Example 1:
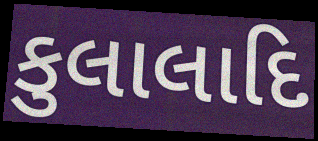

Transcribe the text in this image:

કુલાલાદિ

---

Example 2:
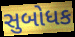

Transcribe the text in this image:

સુબોધક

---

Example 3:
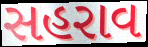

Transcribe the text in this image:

સહરાવ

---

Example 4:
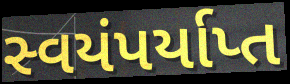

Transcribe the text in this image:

સ્વયંપર્યાપ્ત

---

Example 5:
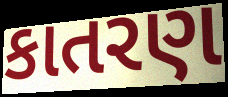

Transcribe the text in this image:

કાતરણ